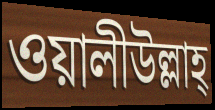
ওয়ালীউল্লাহ্